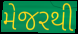
મેજરથી